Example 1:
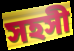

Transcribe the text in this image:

সহসী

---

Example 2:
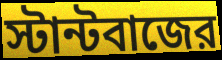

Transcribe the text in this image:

স্টান্টবাজের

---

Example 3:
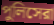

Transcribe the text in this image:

পুলিসেরা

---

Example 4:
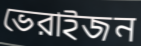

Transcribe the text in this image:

ভেরাইজন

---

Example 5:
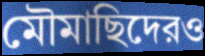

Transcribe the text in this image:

মৌমাছিদেরও